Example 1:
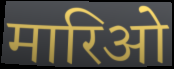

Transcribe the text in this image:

मारिओ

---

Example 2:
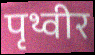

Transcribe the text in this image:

पृथ्वीर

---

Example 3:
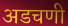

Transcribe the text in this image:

अडचणी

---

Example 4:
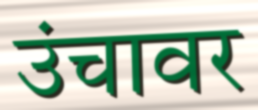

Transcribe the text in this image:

उंचावर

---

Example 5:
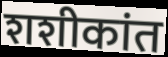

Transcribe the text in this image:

शशीकांत